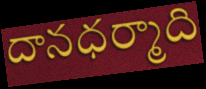
దానధర్మాది